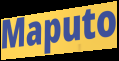
Maputo